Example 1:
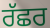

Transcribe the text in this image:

ਰੱਛਰ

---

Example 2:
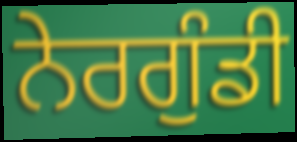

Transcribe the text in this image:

ਨੇਰਗੁੰਡੀ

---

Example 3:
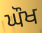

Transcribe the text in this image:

ਘੌਖ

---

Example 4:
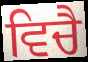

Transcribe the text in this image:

ਵਿਚੈ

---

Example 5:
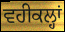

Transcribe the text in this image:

ਵਹੀਕਲ੍ਹਾਂ